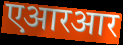
एआरआर